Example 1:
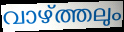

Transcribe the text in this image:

വാഴ്ത്തലും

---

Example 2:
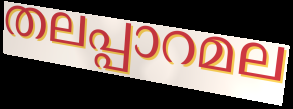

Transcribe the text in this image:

തലപ്പാറമല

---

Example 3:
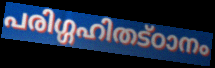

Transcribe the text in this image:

പരിഗ്ഗഹിതട്ഠാനം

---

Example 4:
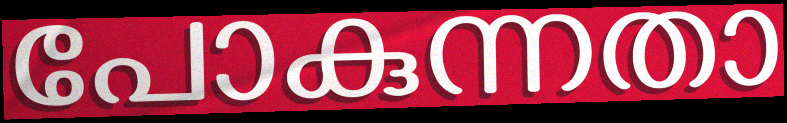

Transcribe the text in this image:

പോകുന്നതാ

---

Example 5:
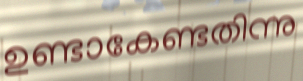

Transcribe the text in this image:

ഉണ്ടാകേണ്ടതിന്നു